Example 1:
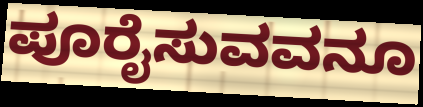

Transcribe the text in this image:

ಪೂರೈಸುವವನೂ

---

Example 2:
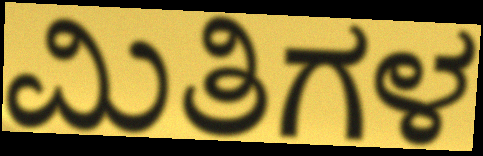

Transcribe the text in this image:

ಮಿತಿಗಳ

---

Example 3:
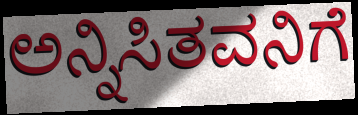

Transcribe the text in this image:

ಅನ್ನಿಸಿತವನಿಗೆ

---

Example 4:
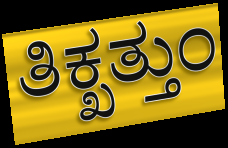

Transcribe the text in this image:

ತಿಕ್ಖತ್ತುಂ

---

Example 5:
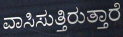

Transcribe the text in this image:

ವಾಸಿಸುತ್ತಿರುತ್ತಾರೆ